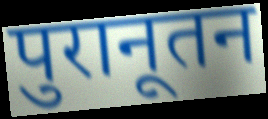
पुरानूतन